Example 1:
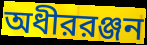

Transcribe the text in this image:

অধীররঞ্জন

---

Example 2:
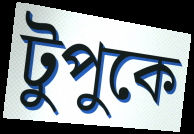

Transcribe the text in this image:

টুপুকে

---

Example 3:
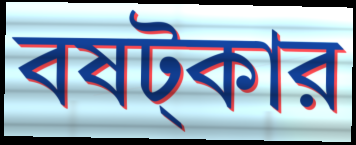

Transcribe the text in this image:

বষট্কার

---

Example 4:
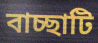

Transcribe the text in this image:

বাচ্ছাটি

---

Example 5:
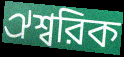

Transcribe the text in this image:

ঐশ্বরিক